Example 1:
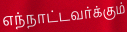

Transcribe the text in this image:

எந்நாட்டவர்க்கும்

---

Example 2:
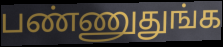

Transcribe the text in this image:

பண்ணுதுங்க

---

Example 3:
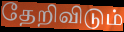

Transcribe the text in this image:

தேறிவிடும்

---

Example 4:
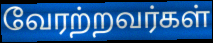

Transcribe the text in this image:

வேரற்றவர்கள்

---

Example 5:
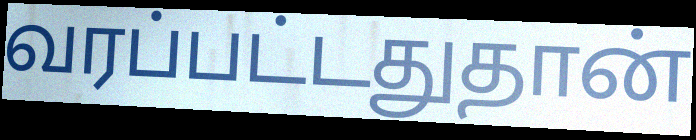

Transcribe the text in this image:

வரப்பட்டதுதான்